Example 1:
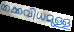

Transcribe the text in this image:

തക്കവിധമുള്ള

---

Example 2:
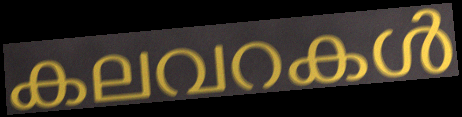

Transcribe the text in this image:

കലവറകൾ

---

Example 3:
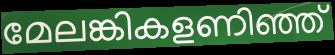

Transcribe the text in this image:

മേലങ്കികളണിഞ്ഞ്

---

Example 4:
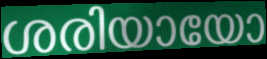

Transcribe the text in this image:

ശരിയായോ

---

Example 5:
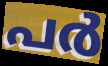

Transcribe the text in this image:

പർ